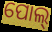
ପୋଲ୍